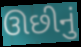
ઊછીનું